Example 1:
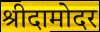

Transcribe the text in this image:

श्रीदामोदर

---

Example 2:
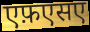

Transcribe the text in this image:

एफ़एसए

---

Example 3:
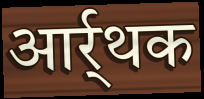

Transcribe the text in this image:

आर्र्थक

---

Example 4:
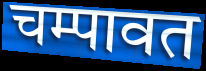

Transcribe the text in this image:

चम्पावत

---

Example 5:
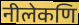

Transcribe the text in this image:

नीलेकणि